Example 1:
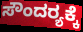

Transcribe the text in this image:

ಸೌಂದರ‍್ಯಕ್ಕೆ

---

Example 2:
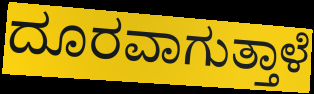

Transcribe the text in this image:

ದೂರವಾಗುತ್ತಾಳೆ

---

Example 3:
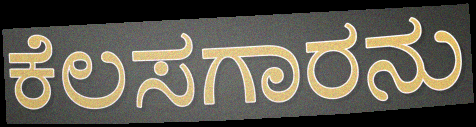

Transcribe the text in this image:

ಕೆಲಸಗಾರನು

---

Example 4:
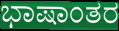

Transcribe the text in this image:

ಭಾಷಾಂತರ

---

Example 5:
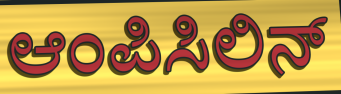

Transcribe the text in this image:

ಆಂಪಿಸಿಲಿನ್